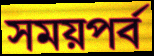
সময়পর্ব